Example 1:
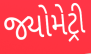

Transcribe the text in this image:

જ્યોમેટ્રી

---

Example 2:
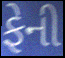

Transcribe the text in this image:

ફેની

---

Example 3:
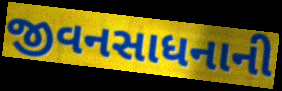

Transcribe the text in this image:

જીવનસાધનાની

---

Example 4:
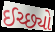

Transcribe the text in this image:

ઈચ્છ્યો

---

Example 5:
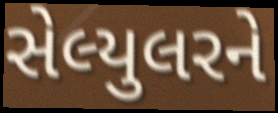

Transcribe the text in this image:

સેલ્યુલરને